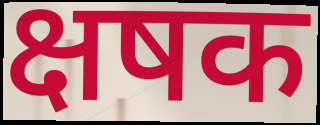
क्षषक